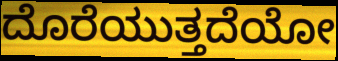
ದೊರೆಯುತ್ತದೆಯೋ